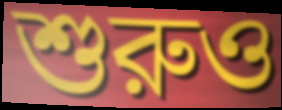
শুরুও